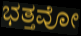
ಭತ್ತವೋ